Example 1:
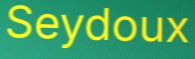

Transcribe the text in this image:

Seydoux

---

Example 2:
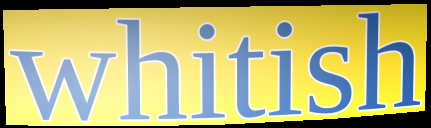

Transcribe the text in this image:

whitish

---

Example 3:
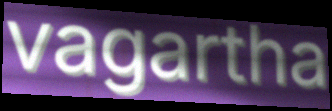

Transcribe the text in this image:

vagartha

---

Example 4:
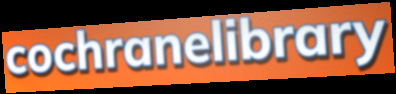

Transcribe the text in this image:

cochranelibrary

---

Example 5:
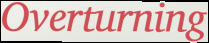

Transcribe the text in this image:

Overturning